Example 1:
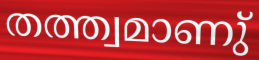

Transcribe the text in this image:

തത്ത്വമാണു്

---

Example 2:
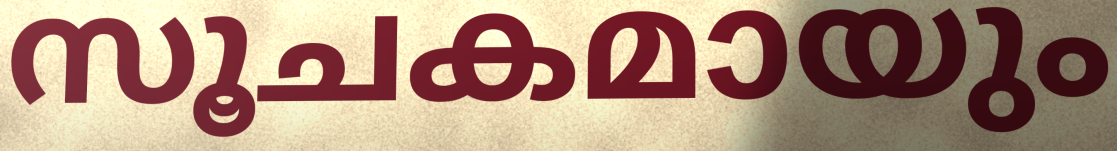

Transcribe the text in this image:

സൂചകമായും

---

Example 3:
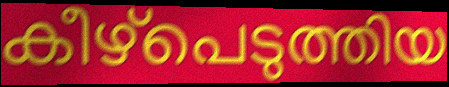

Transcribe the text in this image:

കീഴ്പെടുത്തിയ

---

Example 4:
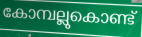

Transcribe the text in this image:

കോമ്പല്ലുകൊണ്ട്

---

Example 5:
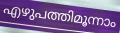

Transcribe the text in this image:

എഴുപത്തിമൂന്നാം